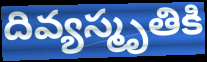
దివ్యస్మృతికి